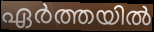
ഏർത്തയിൽ